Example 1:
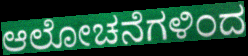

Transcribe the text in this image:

ಆಲೋಚನೆಗಳಿಂದ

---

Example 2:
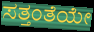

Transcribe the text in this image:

ಸತ್ತಂತೆಯೇ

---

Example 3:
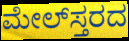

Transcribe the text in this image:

ಮೇಲ್‌ಸ್ತರದ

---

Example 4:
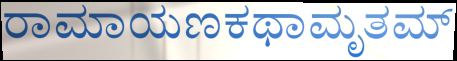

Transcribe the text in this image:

ರಾಮಾಯಣಕಥಾಮೃತಮ್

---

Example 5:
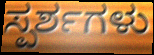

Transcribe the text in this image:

ಸ್ಪರ್ಶಗಳು